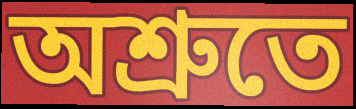
অশ্রুতে